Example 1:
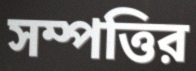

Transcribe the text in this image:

সম্পত্তির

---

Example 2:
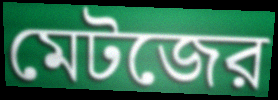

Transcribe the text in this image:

মেটজের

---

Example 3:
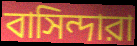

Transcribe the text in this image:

বাসিন্দারা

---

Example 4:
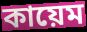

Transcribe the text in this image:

কায়েম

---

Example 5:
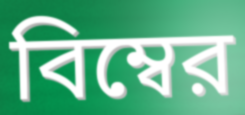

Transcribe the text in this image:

বিম্বের